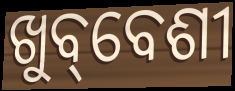
ଖୁବ୍‌ବେଶୀ